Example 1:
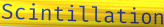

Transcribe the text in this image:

Scintillation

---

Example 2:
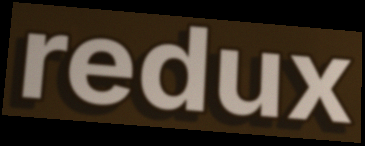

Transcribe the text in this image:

redux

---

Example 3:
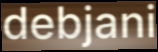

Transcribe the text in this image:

debjani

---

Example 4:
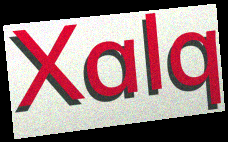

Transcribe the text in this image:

Xalq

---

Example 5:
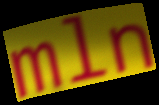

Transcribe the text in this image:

mln